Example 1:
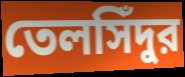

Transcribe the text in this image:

তেলসিঁদুর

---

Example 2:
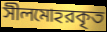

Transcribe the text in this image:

সীলমোহরকৃত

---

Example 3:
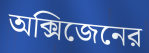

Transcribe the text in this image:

অক্সিজেনের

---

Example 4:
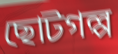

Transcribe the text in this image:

ছোটগল্প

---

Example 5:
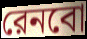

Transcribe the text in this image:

রেনবো